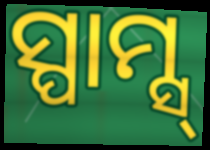
ସ୍ପାମ୍ସ୍